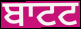
ਬਾਟਟ